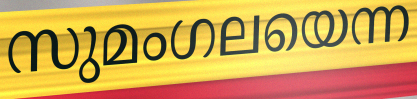
സുമംഗലയെന്ന